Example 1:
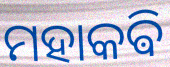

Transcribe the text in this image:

ମହାକଵି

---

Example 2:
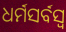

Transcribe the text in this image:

ଧର୍ମସର୍ବସ୍ୱ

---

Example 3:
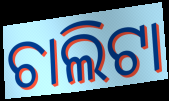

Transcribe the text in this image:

ଚାଲିଟା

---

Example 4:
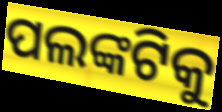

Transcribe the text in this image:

ପଲଙ୍କଟିକୁ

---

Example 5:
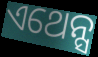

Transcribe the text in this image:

ଏଥେନ୍ସ